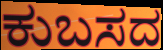
ಕುಬಸದ